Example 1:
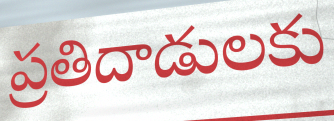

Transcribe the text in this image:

ప్రతిదాడులకు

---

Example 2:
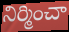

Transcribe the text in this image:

నిర్మించా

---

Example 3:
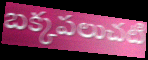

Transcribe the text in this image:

బక్కపలుచటి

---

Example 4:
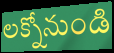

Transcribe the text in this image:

లక్నోనుండి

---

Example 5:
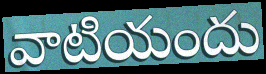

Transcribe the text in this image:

వాటియందు